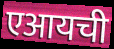
एआयची